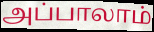
அப்பாலாம்